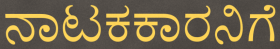
ನಾಟಕಕಾರನಿಗೆ